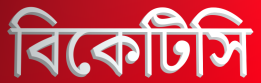
বিকেটিসি